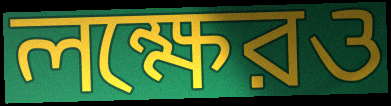
লক্ষেরও